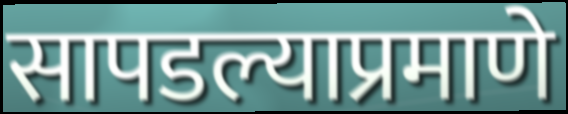
सापडल्याप्रमाणे